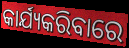
କାର୍ଯ୍ୟକରିବାରେ